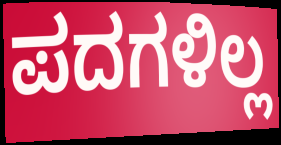
ಪದಗಳಿಲ್ಲ